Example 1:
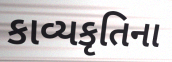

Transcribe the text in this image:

કાવ્યકૃતિના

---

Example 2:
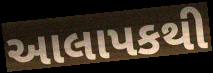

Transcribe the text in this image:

આલાપકથી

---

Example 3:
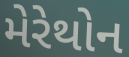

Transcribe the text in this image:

મેરેથોન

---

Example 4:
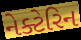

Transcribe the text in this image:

નેક્ટેરિન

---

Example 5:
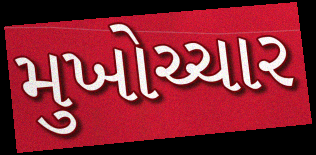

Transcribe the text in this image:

મુખોચ્ચાર